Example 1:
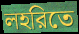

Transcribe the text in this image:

লহরিতে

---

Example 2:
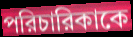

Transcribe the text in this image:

পরিচারিকাকে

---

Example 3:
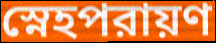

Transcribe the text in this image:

স্নেহপরায়ণ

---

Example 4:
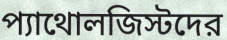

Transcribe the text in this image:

প্যাথোলজিস্টদের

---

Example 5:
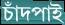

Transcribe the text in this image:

চাঁদপাই